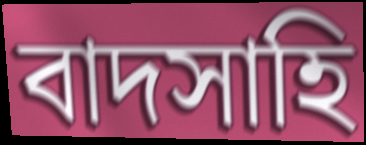
বাদসাহি